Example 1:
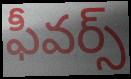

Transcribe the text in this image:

ఫీవర్స్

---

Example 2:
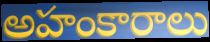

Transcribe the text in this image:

అహంకారాలు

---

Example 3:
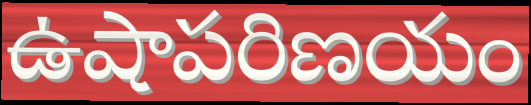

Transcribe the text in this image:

ఉషాపరిణయం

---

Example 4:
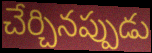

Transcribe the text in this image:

చేర్చినప్పుడు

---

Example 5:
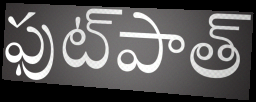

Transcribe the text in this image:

ఫుట్‌పాత్